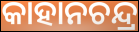
କାହାନଚନ୍ଦ୍ର